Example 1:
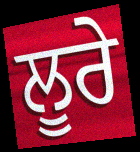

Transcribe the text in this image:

ਲੂਰੇ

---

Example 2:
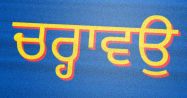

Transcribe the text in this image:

ਚਰ੍ਹਾਵਉ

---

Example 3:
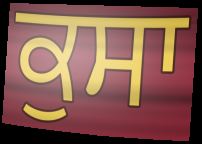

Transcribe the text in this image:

ਕੁਸਾ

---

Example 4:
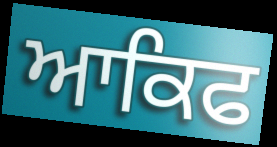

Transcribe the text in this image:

ਆਕਿਫ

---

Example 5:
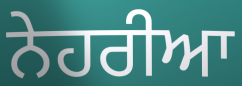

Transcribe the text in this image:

ਨੇਹਰੀਆ